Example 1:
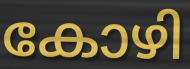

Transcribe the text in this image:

കോഴി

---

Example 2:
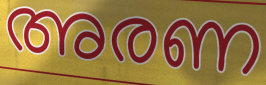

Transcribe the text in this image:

അരണ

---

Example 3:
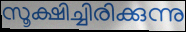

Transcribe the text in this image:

സൂക്ഷിച്ചിരിക്കുന്നു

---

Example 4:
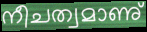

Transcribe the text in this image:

നീചത്വമാണു്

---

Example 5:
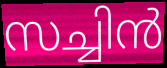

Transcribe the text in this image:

സച്ചിൻ